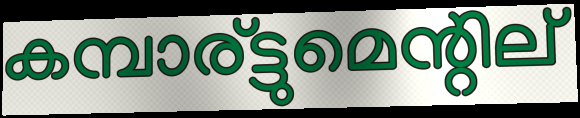
കമ്പാര്ട്ടുമെന്റില്